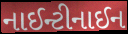
નાઈન્ટીનાઈન